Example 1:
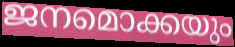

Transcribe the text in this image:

ജനമൊക്കയും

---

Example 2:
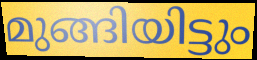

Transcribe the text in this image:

മുങ്ങിയിട്ടും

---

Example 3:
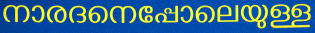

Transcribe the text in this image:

നാരദനെപ്പോലെയുള്ള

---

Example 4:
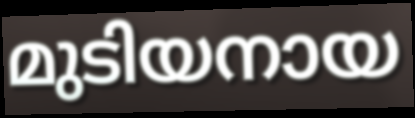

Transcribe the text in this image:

മുടിയനായ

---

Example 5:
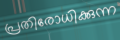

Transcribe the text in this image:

പ്രതിരോധിക്കുന്ന